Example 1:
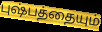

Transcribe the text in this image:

புஷ்பத்தையும்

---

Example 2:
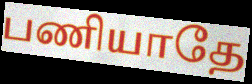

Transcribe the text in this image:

பணியாதே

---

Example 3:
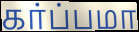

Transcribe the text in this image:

கர்ப்பமா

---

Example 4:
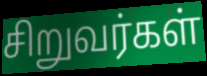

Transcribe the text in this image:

சிறுவர்கள்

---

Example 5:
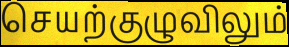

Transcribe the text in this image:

செயற்குழுவிலும்